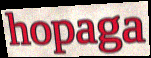
hopaga